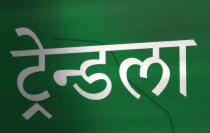
ट्रेन्डला